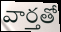
వార్తతో